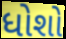
ધોશો